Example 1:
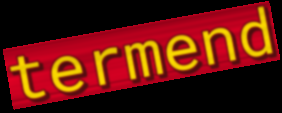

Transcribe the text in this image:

termend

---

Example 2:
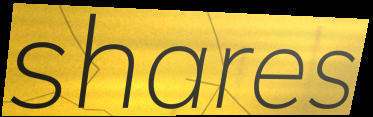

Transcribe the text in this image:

shares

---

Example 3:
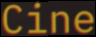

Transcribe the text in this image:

Cine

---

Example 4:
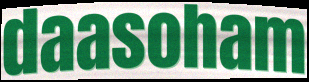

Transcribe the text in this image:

daasoham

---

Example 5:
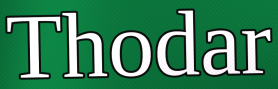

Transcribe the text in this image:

Thodar